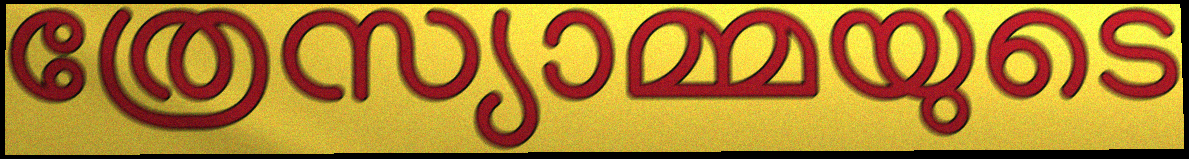
ത്രേസ്യാമ്മയുടെ